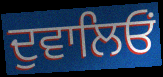
ਦੁਵਾਲਿਓਂ